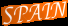
SPAIN